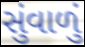
સુંવાળું